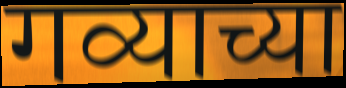
गव्याच्या